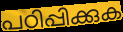
പഠിപ്പിക്കുക